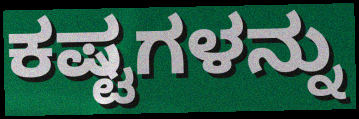
ಕಷ್ಟಗಳನ್ನು